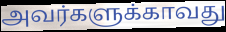
அவர்களுக்காவது